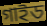
গাইড